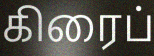
கிரைப்